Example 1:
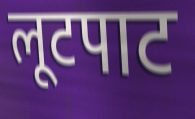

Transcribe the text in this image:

लूटपाट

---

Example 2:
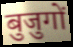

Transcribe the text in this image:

बुजुगों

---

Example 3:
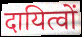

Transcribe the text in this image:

दायित्वों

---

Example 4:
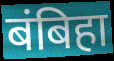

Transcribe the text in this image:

बंबिहा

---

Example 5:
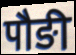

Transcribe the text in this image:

पौङी